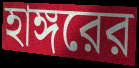
হাঙ্গরের